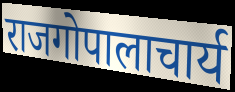
राजगोपालाचार्य